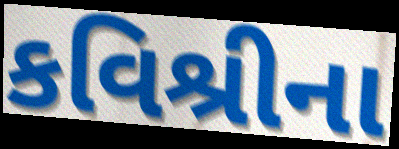
કવિશ્રીના